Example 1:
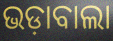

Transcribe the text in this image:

ଭଡ଼ାବାଲା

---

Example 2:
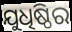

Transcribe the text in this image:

ଯୁଧିଷ୍ଠିର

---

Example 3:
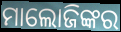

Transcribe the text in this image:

ମାଲୋଜିଙ୍କର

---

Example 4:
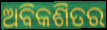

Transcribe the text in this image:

ଅବିକଶିତର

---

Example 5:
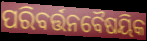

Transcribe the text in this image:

ପରିବର୍ତ୍ତନବୈଷୟିକ